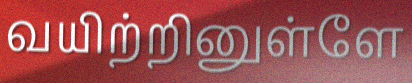
வயிற்றினுள்ளே